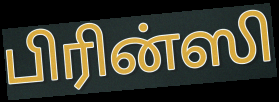
பிரின்ஸி